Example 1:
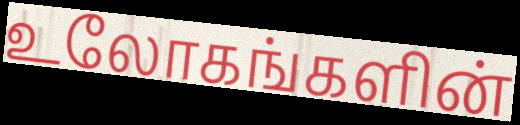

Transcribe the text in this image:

உலோகங்களின்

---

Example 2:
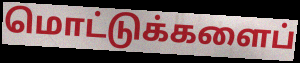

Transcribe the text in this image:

மொட்டுக்களைப்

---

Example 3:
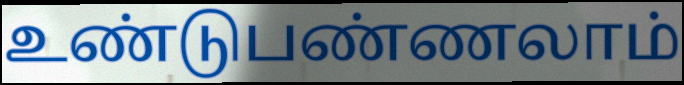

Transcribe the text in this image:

உண்டுபண்ணலாம்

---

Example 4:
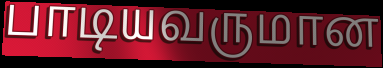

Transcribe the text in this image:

பாடியவருமான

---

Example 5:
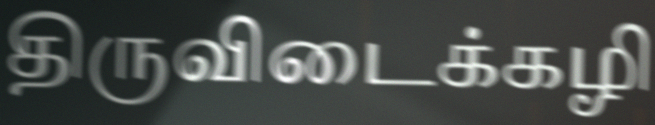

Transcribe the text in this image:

திருவிடைக்கழி